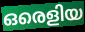
ഒരെളിയ